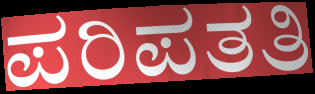
ಪರಿಪತತಿ